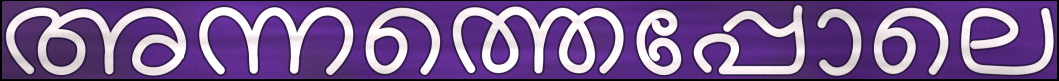
അന്നത്തെപ്പോലെ